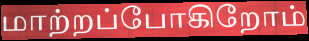
மாற்றப்போகிறோம்